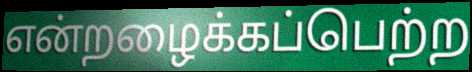
என்றழைக்கப்பெற்ற